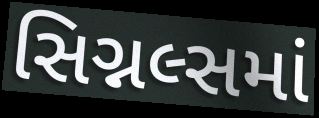
સિગ્નલ્સમાં